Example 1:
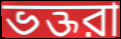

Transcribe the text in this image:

ভক্তরা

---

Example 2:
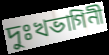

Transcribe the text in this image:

দুঃখভাগিনী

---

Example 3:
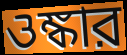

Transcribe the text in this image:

ওঙ্কার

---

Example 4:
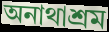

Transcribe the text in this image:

অনাথাশ্রম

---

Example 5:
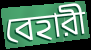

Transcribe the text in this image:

বেহারী